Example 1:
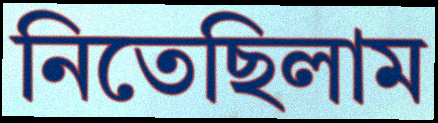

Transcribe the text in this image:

নিতেছিলাম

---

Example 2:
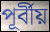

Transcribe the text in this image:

পূর্বীয়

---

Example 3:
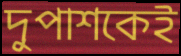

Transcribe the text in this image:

দুপাশকেই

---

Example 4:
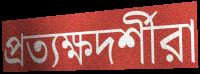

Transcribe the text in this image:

প্রত্যক্ষদর্শীরা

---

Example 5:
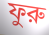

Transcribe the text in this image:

ফুরু